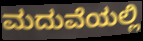
ಮದುವೆಯಲ್ಲಿ